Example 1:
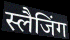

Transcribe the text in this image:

स्लैजिंग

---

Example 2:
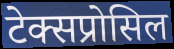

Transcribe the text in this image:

टेक्सप्रोसिल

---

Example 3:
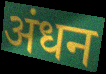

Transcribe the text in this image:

अंधन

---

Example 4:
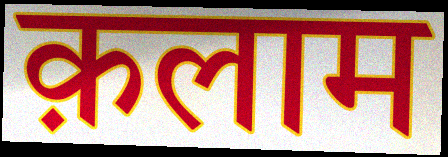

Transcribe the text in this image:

क़लाम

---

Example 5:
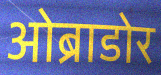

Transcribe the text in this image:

ओब्राडोर